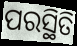
ପରସ୍ଥିତି